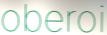
oberoi